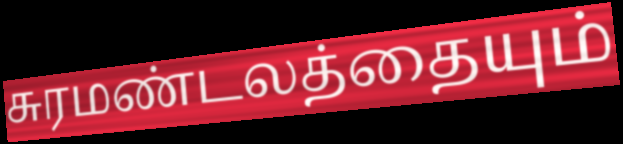
சுரமண்டலத்தையும்